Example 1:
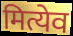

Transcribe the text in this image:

मित्येव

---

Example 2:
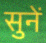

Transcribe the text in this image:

सुनें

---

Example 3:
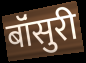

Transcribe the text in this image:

बॉंसुरी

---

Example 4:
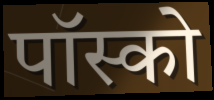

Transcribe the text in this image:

पॉस्‍को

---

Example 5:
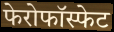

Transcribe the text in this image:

फेरोफॉस्फेट